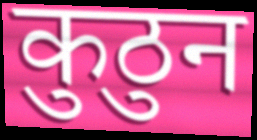
कुठुन